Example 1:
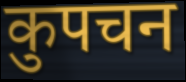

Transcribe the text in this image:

कुपचन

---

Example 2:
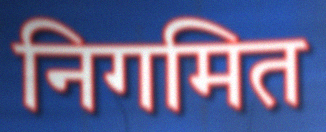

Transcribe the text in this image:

निगमित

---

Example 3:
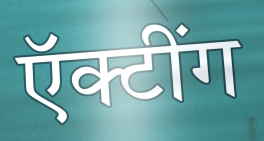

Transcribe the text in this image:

ऍक्टींग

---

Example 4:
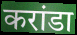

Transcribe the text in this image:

करांडा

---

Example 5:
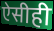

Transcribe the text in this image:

ऐसीही